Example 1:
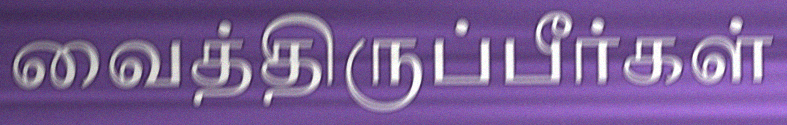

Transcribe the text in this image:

வைத்திருப்பீர்கள்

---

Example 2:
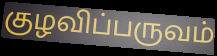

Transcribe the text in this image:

குழவிப்பருவம்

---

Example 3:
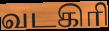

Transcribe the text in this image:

வடகிரி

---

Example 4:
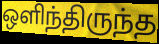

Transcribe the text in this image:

ஒளிந்திருந்த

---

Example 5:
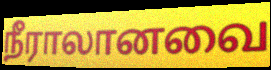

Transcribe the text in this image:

நீராலானவை